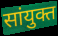
सांयुक्त